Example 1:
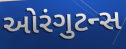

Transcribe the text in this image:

ઓરંગુટન્સ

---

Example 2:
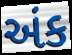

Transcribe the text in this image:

અંક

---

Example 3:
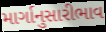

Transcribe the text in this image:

માર્ગાનુસારીભાવ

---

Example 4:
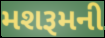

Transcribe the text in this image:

મશરૂમની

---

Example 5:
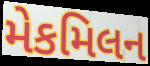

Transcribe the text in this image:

મેકમિલન